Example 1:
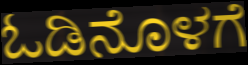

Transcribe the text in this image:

ಓಡಿನೊಳಗೆ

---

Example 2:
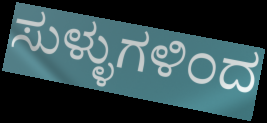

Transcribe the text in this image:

ಸುಳ್ಳುಗಳಿಂದ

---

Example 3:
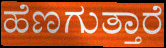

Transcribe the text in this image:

ಹೆಣಗುತ್ತಾರೆ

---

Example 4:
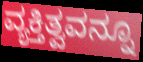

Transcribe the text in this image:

ವ್ಯಕ್ತಿತ್ವವನ್ನೂ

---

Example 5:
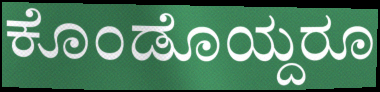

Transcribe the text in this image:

ಕೊಂಡೊಯ್ದರೂ